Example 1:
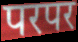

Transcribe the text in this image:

परपर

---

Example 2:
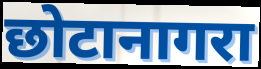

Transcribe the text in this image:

छोटानागरा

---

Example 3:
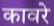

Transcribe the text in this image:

कावरे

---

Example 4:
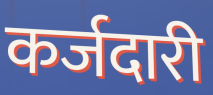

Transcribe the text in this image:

कर्जदारी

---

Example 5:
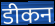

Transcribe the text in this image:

डीकन